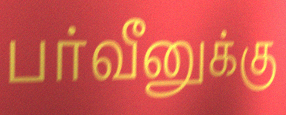
பர்வீனுக்கு